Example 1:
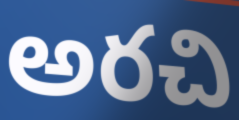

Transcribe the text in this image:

అరచి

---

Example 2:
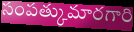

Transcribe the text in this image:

సంపత్కుమారగారి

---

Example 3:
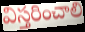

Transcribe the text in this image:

విస్తరించాలి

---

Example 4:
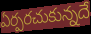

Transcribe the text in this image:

ఏర్పరచుకున్నదే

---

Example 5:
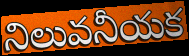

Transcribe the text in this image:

నిలువనీయక